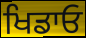
ਖਿਡਾਓ